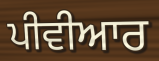
ਪੀਵੀਆਰ